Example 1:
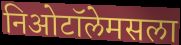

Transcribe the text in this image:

निओटॉलेमसला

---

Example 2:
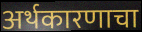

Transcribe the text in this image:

अर्थकारणाचा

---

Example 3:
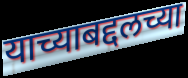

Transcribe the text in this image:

याच्याबद्दलच्या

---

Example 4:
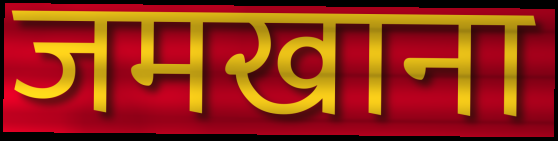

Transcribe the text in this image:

जमखाना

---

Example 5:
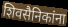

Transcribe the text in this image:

शिवसैनिकांना